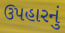
ઉપહારનું